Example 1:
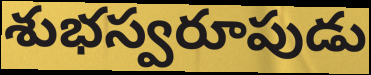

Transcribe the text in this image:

శుభస్వరూపుడు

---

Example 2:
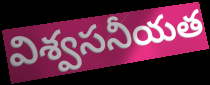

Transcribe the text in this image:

విశ్వసనీయత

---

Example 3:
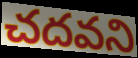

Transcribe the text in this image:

చదవని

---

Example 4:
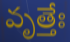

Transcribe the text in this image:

వృత్తేః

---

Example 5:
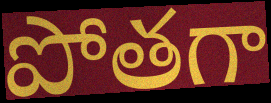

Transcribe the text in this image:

పోతగా